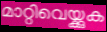
മാറ്റിവെയ്ക്കുക